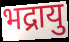
भद्रायु